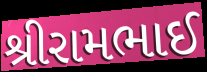
શ્રીરામભાઈ